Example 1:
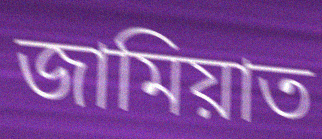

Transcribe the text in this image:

জামিয়াত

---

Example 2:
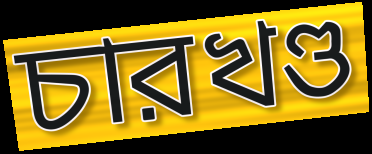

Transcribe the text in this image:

চারখণ্ড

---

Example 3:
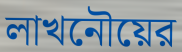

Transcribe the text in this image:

লাখনৌয়ের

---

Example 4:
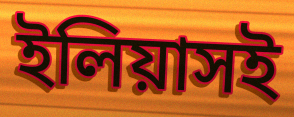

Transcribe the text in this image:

ইলিয়াসই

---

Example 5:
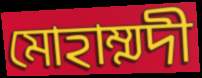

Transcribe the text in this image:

মোহাম্মদী